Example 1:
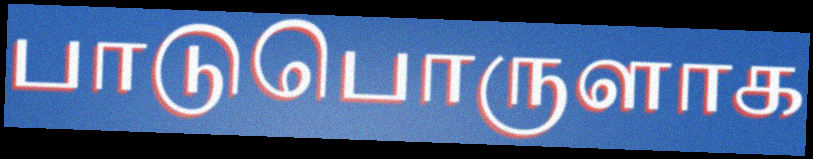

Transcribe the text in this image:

பாடுபொருளாக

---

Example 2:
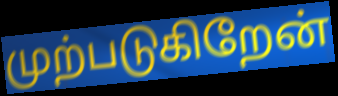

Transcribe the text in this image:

முற்படுகிறேன்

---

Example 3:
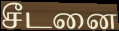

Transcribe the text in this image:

சீடனை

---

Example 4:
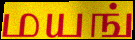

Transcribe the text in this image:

மயங்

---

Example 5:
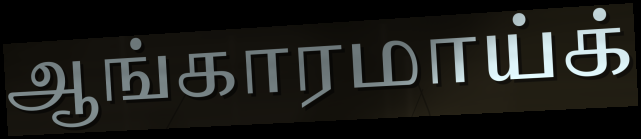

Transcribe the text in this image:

ஆங்காரமாய்க்